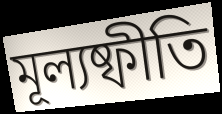
মূল্যষ্ফীতি